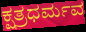
ಕ್ಷತ್ರಧರ್ಮವ